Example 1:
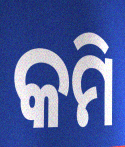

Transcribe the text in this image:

କମି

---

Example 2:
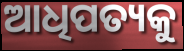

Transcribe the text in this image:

ଆଧିପତ୍ୟକୁ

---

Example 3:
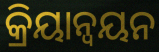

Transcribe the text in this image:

କ୍ରିୟାନ୍ଵୟନ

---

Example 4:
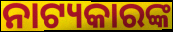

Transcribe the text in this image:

ନାଟ୍ୟକାରଙ୍କ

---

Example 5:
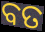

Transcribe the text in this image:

ବତ